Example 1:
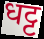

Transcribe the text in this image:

धट्ट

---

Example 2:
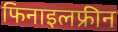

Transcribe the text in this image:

फिनाइलफ्रीन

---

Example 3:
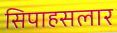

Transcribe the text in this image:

सिपाहसलार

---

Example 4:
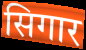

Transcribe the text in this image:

सिगार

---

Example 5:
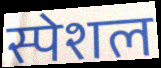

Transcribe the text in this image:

स्‍पेशल